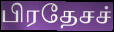
பிரதேசச்